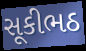
સૂકીભઠ